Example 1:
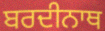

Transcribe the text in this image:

ਬਰਦੀਨਾਥ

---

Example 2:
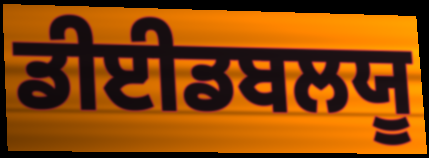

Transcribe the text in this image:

ਡੀਈਡਬਲਯੂ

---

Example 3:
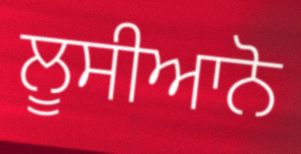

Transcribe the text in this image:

ਲੂਸੀਆਨੋ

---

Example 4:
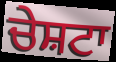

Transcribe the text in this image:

ਚੇਸ਼ਟਾ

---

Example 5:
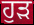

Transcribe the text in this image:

ਹੁੜ